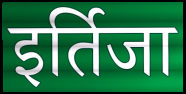
इर्तिजा